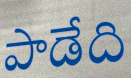
పాడేది